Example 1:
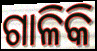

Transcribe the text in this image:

ଗାଳିକି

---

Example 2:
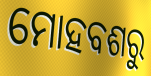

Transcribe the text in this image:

ମୋହବଶରୁ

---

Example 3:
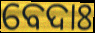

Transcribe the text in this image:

ବେଦାଃ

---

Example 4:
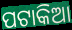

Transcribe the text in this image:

ପଟାକିଆ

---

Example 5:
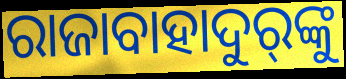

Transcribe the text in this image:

ରାଜାବାହାଦୁର୍‍ଙ୍କୁ